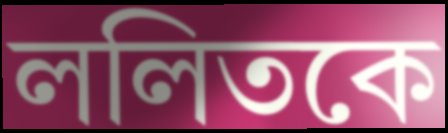
ললিতকে